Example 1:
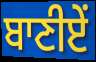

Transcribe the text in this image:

ਬਾਣੀਏਂ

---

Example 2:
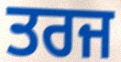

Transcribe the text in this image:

ਤਰਜ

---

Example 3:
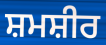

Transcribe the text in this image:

ਸ਼ਮਸ਼ੀਰ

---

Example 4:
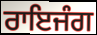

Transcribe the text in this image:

ਰਾਇਜੰਗ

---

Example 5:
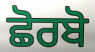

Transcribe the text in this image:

ਛੋਰਬੋ